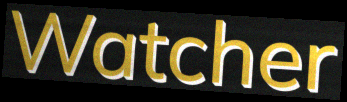
Watcher